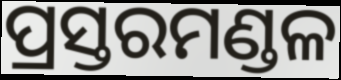
ପ୍ରସ୍ତରମଣ୍ଡଳ